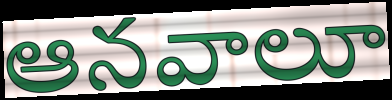
ఆనవాలూ